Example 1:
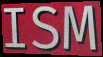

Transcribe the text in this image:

ISM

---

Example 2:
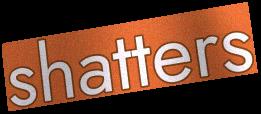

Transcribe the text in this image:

shatters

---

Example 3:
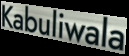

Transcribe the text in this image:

Kabuliwala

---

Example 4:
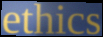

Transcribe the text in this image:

ethics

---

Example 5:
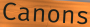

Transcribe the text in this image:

Canons